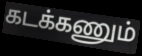
கடக்கணும்